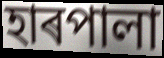
হাৰপালা